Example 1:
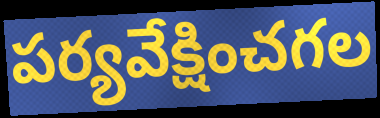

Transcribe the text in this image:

పర్యవేక్షించగల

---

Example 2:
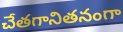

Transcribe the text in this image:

చేతగానితనంగా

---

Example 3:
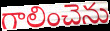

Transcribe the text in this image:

గాలించెను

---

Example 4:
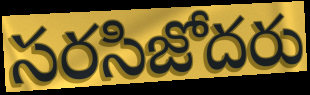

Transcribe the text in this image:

సరసిజోదరు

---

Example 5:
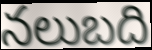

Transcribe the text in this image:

నలుబది